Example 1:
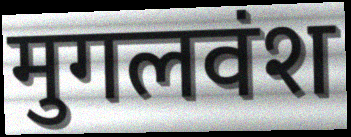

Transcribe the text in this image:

मुगलवंश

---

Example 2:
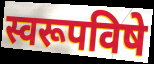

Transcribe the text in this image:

स्वरूपविषे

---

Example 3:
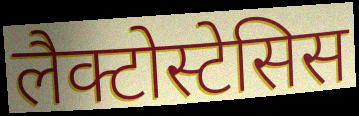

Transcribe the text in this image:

लैक्टोस्टेसिस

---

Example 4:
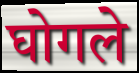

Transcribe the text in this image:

घोगले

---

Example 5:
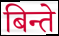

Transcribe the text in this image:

बिन्ते